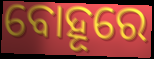
ବୋହୂରେ